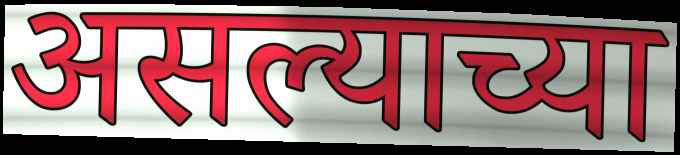
असल्याच्या